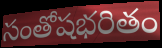
సంతోషభరితం